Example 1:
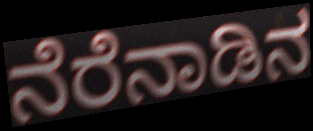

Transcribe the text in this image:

ನೆರೆನಾಡಿನ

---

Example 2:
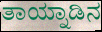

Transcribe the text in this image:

ತಾಯ್ನಾಡಿನ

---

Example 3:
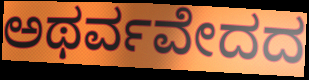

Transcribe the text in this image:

ಅಥರ್ವವೇದದ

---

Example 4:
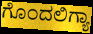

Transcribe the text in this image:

ಗೊಂದಲಿಗ್ಯಾ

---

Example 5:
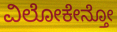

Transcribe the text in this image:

ವಿಲೋಕೇನ್ತೋ